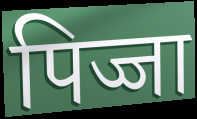
पिज्जा